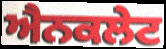
ਐਨਕਲੇਟ